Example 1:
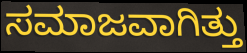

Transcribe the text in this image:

ಸಮಾಜವಾಗಿತ್ತು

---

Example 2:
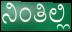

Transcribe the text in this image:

ನಿಂತಿಲ್ಲಿ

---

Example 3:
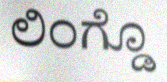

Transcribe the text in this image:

ಲಿಂಗ್ಡೊ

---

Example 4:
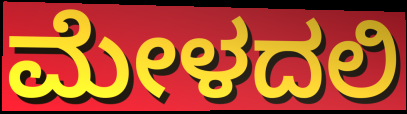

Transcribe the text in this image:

ಮೇಳದಲಿ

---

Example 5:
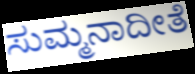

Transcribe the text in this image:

ಸುಮ್ಮನಾದೀತೆ